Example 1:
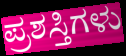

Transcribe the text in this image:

ಪ್ರಶಸ್ತಿಗಳು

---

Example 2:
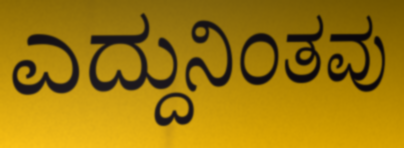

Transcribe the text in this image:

ಎದ್ದುನಿಂತವು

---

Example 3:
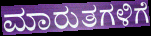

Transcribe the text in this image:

ಮಾರುತಗಳಿಗೆ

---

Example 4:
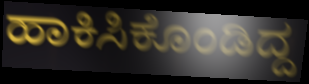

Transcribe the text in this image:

ಹಾಕಿಸಿಕೊಂಡಿದ್ದ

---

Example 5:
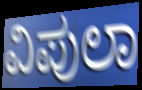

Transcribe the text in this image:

ವಿಪುಲಾ